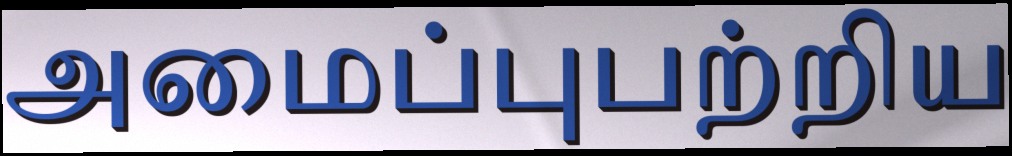
அமைப்புபற்றிய